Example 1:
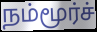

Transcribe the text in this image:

நம்மூர்ச்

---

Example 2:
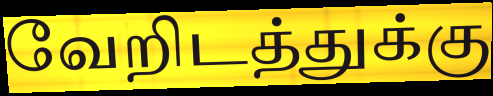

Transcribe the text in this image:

வேறிடத்துக்கு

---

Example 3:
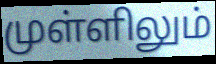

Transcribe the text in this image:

முள்ளிலும்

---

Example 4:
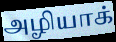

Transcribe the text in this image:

அழியாக்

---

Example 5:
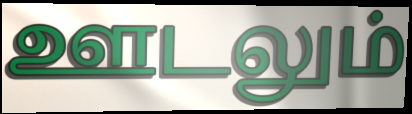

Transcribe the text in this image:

ஊடலும்